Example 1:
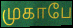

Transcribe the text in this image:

முகாபே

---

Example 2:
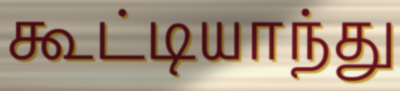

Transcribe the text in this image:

கூட்டியாந்து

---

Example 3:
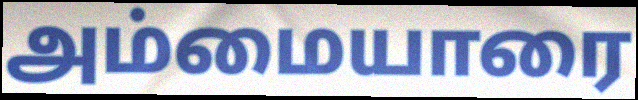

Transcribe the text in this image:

அம்மையாரை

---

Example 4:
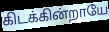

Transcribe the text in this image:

கிடக்கின்றாயே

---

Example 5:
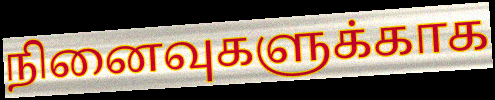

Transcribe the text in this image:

நினைவுகளுக்காக